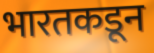
भारतकडून